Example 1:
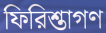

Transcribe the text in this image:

ফিরিশ্তাগণ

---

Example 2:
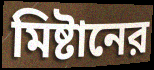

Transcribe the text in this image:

মিষ্টানের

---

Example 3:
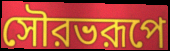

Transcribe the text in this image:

সৌরভরূপে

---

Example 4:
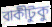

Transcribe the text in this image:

বাকীটুকু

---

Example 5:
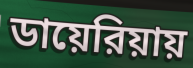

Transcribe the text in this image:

ডায়েরিয়ায়